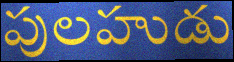
పులహుడు